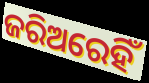
ଜରିଅରେହିଁ